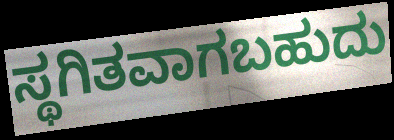
ಸ್ಥಗಿತವಾಗಬಹುದು